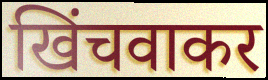
खिंचवाकर